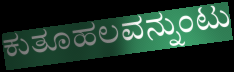
ಕುತೂಹಲವನ್ನುಂಟು